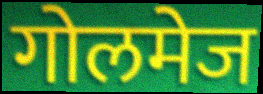
गोलमेज